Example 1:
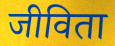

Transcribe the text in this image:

जीविता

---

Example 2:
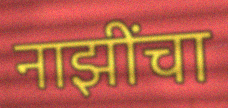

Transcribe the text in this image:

नाझींचा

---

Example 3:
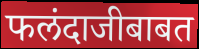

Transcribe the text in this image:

फलंदाजीबाबत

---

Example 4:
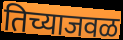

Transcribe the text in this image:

तिच्याजवळ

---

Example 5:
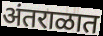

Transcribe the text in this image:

अंतराळात